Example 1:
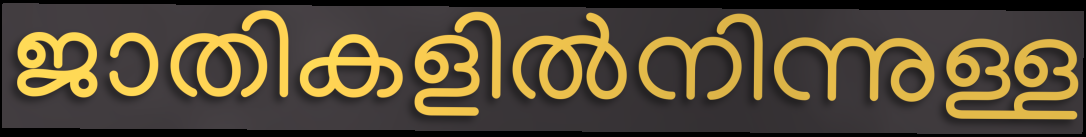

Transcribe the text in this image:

ജാതികളിൽനിന്നുള്ള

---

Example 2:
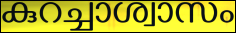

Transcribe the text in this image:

കുറച്ചാശ്വാസം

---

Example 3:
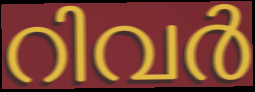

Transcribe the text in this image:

റിവർ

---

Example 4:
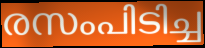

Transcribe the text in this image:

രസംപിടിച്ച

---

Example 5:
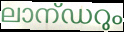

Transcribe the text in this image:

ലാന്ഡറും